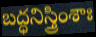
బద్ధనిస్త్రింశాః